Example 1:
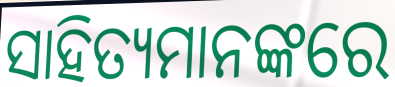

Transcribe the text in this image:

ସାହିତ୍ୟମାନଙ୍କରେ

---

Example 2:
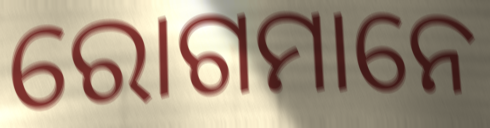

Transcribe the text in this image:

ରୋଗମାନେ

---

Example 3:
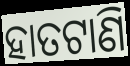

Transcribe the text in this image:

ହାତଟାଣି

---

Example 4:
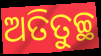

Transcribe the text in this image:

ଅତିତୁଚ୍ଛ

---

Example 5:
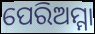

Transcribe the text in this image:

ପେରିଅମ୍ମା